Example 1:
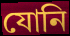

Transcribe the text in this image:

যোনি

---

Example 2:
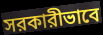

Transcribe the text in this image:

সরকারীভাবে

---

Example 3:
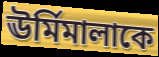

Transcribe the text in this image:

ঊর্মিমালাকে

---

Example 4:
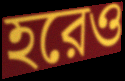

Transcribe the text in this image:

হরেও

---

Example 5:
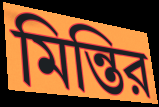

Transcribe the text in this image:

মিন্তির